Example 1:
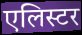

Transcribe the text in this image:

एलिस्टर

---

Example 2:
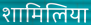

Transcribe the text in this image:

शामिलिया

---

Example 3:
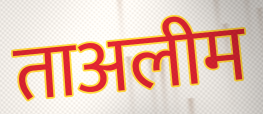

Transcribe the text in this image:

ताअलीम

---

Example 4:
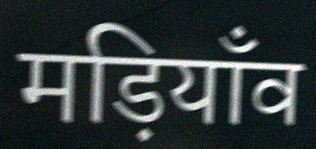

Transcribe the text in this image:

मड़ियाँव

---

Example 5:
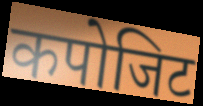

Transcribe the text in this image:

कपोजिट